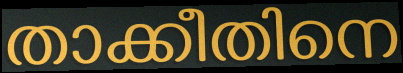
താക്കീതിനെ